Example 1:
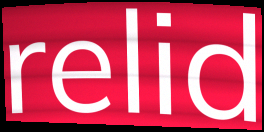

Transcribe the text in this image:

relid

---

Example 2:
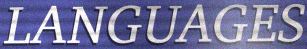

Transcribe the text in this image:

LANGUAGES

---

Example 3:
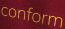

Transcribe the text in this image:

conform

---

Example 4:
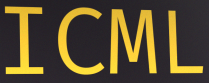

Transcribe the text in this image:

ICML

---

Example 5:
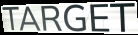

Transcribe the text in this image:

TARGET